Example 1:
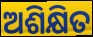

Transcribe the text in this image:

ଅଶିକ୍ଷିତ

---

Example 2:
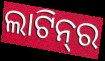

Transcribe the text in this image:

ଲାଟିନ୍‌ର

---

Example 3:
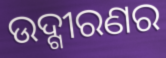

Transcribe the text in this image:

ଉଦ୍ଗୀରଣର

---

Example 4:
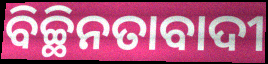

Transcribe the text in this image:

ବିଚ୍ଛିନତାବାଦୀ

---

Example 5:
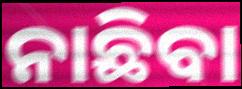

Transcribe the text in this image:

ନାଛିବା